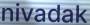
nivadak